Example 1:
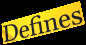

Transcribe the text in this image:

Defines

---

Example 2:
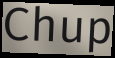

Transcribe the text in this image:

Chup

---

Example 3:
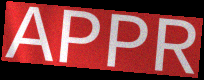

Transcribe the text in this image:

APPR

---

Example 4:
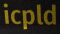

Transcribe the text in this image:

icpld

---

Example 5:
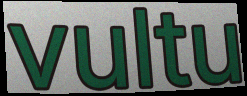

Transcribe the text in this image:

vultu